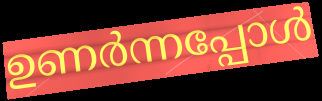
ഉണർന്നപ്പോൾ